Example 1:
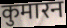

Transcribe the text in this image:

कुमारन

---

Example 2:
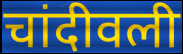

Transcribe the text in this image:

चांदीवली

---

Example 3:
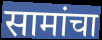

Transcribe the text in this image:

सामांचा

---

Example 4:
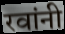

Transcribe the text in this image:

रवांनी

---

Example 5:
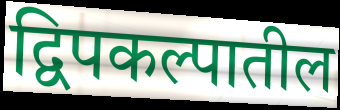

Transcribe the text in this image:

द्विपकल्पातील